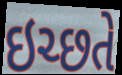
ઇચ્છતે